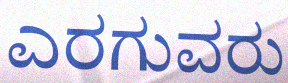
ಎರಗುವರು